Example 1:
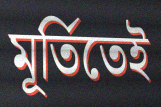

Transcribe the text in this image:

মূর্তিতেই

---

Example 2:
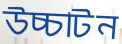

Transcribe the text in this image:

উচ্চাটন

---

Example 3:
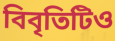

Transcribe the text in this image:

বিবৃতিটিও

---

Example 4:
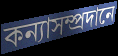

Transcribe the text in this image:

কন্যাসম্প্রদানে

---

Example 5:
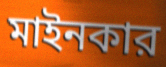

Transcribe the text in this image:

মাইনকার